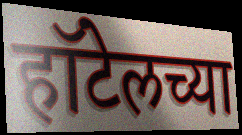
हॉटेलच्या